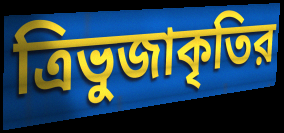
ত্রিভুজাকৃতির